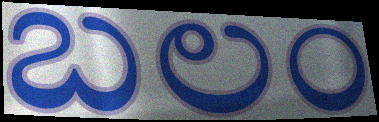
బలం